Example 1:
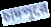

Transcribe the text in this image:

চাদপুরে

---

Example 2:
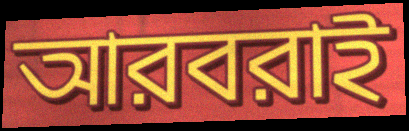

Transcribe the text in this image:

আরবরাই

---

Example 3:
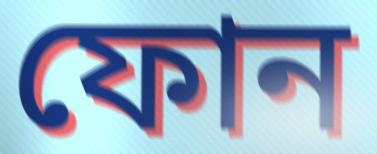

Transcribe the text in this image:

ফোন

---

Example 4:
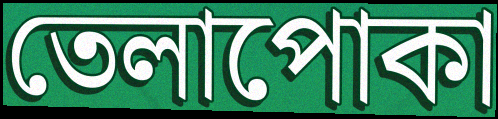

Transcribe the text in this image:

তেলাপোকা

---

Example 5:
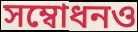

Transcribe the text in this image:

সম্বোধনও